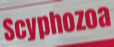
Scyphozoa